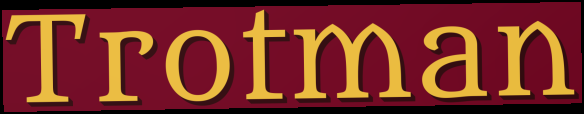
Trotman